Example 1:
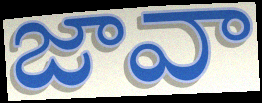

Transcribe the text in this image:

జావా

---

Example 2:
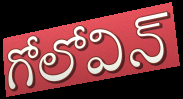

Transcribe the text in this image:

గోలోవిన్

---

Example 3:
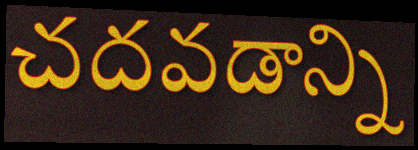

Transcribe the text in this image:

చదవడాన్ని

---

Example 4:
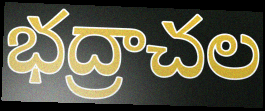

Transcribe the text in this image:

భద్రాచల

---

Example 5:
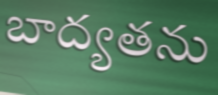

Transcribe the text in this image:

బాద్యతను